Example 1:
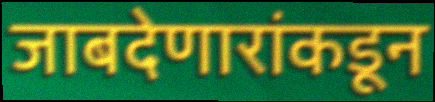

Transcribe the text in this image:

जाबदेणारांकडून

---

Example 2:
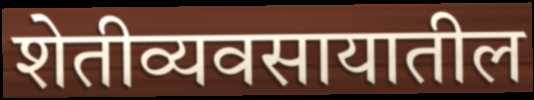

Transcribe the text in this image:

शेतीव्यवसायातील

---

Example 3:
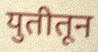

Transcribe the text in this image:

युतीतून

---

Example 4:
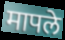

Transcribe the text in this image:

मापले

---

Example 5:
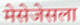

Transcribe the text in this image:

मेसेजेसला